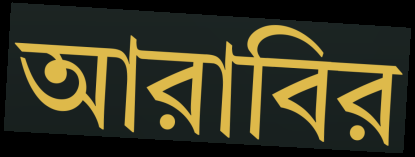
আরাবির